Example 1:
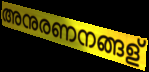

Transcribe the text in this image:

അനുരണനങ്ങള്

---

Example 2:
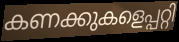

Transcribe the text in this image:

കണക്കുകളെപ്പറ്റി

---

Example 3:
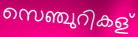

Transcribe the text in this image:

സെഞ്ചുറികള്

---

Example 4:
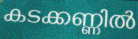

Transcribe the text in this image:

കടക്കണ്ണിൽ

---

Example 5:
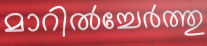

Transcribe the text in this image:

മാറിൽച്ചേർത്തു